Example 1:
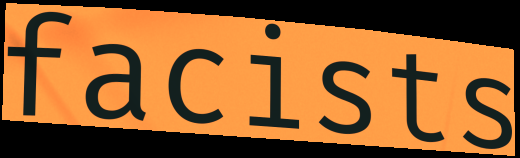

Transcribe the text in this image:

facists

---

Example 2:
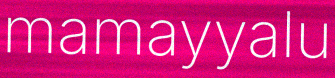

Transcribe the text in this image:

mamayyalu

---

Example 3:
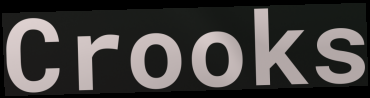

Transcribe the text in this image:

Crooks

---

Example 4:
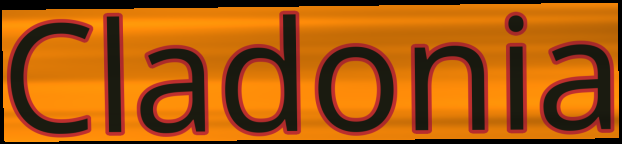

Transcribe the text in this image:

Cladonia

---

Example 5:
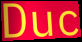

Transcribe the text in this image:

Duc